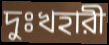
দুঃখহারী